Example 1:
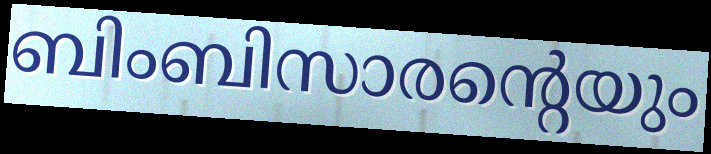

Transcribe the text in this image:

ബിംബിസാരന്റെയും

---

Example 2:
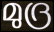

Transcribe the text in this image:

മുദ്ര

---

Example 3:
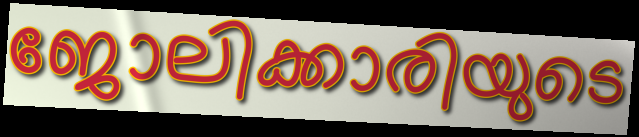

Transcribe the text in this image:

ജോലിക്കാരിയുടെ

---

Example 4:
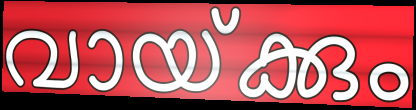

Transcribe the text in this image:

വായ്‌ക്കും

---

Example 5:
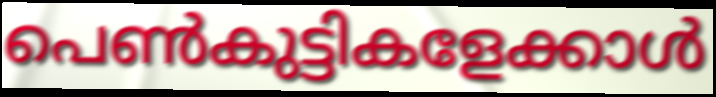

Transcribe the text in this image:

പെൺകുട്ടികളേക്കാൾ